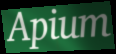
Apium